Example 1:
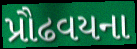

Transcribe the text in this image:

પ્રૌઢવયના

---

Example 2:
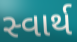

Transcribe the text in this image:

સ્વાર્થ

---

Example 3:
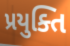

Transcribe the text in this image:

પ્રયુક્તિ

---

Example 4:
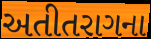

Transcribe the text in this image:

અતીતરાગના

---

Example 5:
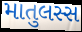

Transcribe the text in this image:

માતુલસ્સ